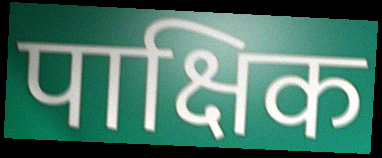
पाक्षिक